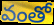
వంతో